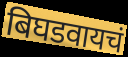
बिघडवायचं